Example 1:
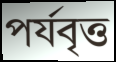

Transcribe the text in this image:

পর্যবৃত্ত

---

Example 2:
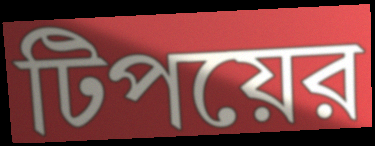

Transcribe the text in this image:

টিপয়ের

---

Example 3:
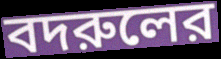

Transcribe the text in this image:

বদরুলের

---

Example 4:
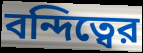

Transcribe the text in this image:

বন্দিত্বের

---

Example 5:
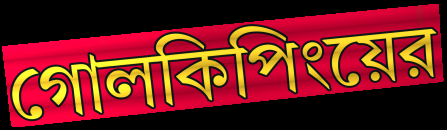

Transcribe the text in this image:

গোলকিপিংয়ের